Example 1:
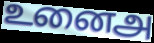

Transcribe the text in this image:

உனைஅ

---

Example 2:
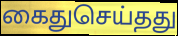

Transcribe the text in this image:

கைதுசெய்தது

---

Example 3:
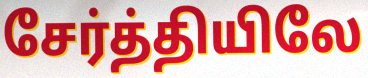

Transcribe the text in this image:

சேர்த்தியிலே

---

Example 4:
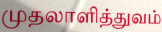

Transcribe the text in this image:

முதலாளித்துவம்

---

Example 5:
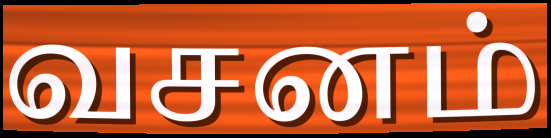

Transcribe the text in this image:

வசனம்